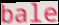
bale